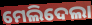
ମେଲିଦେଲା